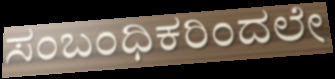
ಸಂಬಂಧಿಕರಿಂದಲೇ